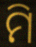
ମି